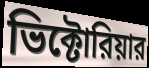
ভিক্টোরিয়ার